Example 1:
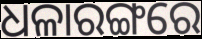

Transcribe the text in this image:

ଧଳାରଙ୍ଗରେ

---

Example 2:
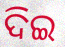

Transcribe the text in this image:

ଦିଇ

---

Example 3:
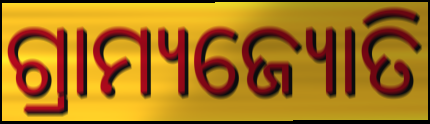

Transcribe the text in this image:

ଗ୍ରାମ୍ୟଜ୍ୟୋତି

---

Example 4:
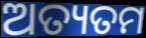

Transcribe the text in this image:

ଅତ୍ୟତମ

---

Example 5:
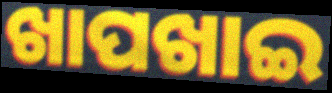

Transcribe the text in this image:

ଖାପଖାଇ